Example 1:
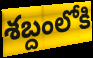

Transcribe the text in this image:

శబ్దంలోకి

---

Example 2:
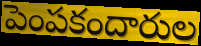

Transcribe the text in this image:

పెంపకందారుల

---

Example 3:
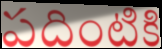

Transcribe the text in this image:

పదింటికి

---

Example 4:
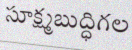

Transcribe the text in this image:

సూక్ష్మబుద్ధిగల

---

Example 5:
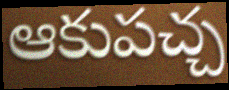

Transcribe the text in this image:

ఆకుపచ్చ